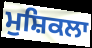
ਮੁਸ਼ਿਕਲਾ